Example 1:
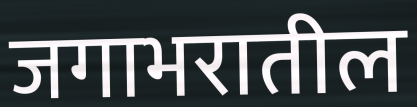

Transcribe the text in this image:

जगाभरातील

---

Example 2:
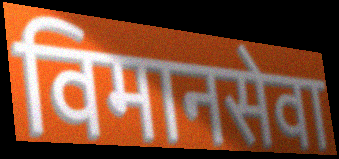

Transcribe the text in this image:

विमानसेवा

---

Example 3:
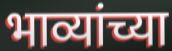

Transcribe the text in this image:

भाव्यांच्या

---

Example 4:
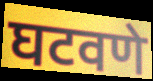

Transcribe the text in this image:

घटवणे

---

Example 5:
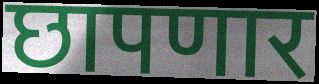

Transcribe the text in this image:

छापणार